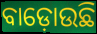
ବାଡ଼ୋଉଛି